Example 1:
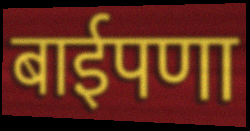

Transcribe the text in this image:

बाईपणा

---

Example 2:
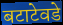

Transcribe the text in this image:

बटाटेवडे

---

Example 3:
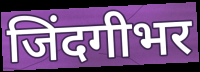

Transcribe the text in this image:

जिंदगीभर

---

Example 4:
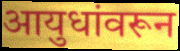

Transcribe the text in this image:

आयुधांवरून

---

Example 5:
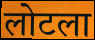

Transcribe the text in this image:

लोटला